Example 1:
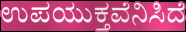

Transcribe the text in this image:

ಉಪಯುಕ್ತವೆನಿಸಿದೆ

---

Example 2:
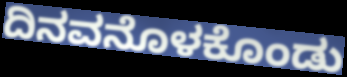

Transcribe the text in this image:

ದಿನವನೊಳಕೊಂಡು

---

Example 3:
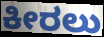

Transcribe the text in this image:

ಕೀರಲು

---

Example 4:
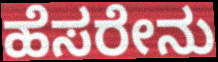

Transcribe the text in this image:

ಹೆಸರೇನು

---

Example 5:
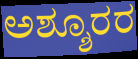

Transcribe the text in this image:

ಅಶ್ಶೂರರ